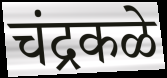
चंद्रकळे